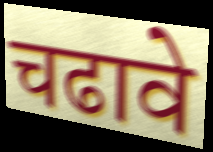
चढावे